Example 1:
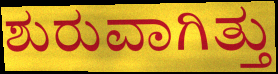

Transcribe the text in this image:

ಶುರುವಾಗಿತ್ತು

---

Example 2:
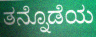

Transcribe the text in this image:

ತನ್ನೊಡೆಯ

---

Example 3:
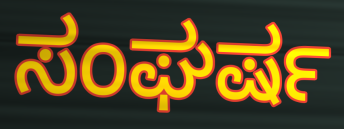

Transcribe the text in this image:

ಸಂಘರ್ಷ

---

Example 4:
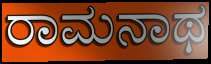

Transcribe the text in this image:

ರಾಮನಾಥ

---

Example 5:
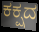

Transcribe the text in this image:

ಕಕ್ಷದ